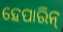
ହେପାରିନ୍